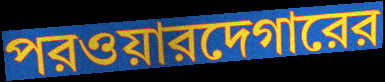
পরওয়ারদেগারের